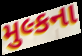
મુલ્કના